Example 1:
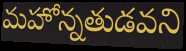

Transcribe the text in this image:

మహోన్నతుడవని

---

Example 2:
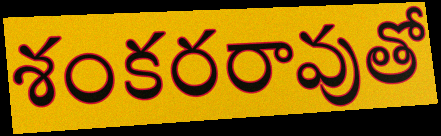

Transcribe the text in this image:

శంకరరావుతో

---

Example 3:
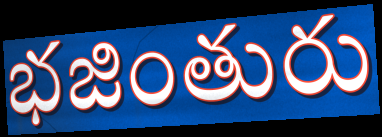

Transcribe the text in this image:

భజింతురు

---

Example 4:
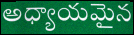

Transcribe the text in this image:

అధ్యాయమైన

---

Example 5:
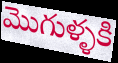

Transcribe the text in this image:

మొగుళ్ళకి